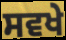
ਸਵਖੇ